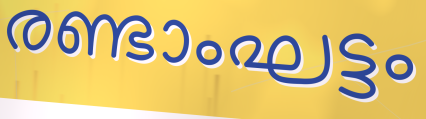
രണ്ടാംഘട്ടം